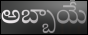
అబ్బాయే